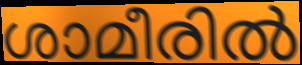
ശാമീരിൽ